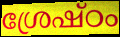
ശ്രേഷ്ഠം